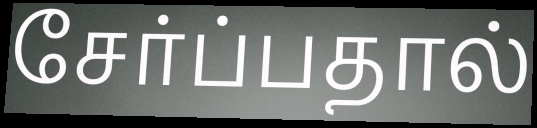
சேர்ப்பதால்